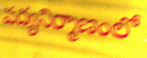
పద్యనిర్మాణంలో